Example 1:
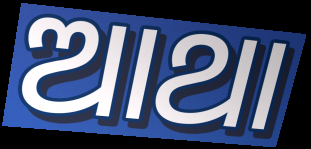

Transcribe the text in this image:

ଆଥା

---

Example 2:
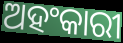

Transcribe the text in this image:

ଅହଂକାରୀ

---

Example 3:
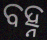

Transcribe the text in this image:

ବହ୍ନ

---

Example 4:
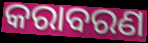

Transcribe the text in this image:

କରାବରଣ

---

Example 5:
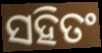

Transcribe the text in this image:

ସହିତଂ